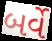
બર્વે